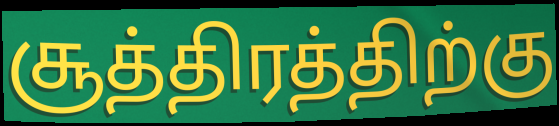
சூத்திரத்திற்கு